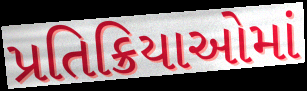
પ્રતિક્રિયાઓમાં